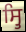
ਸ੍ਤਿ